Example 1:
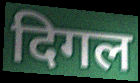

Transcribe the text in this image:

दिगल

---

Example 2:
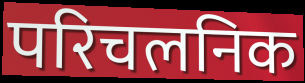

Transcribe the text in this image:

परिचलनिक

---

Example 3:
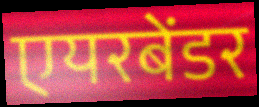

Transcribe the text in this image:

एयरबेंडर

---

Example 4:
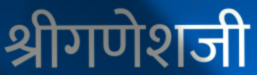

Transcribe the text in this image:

श्रीगणेशजी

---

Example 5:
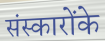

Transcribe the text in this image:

संस्कारोंके